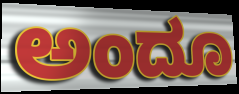
ಅಂದೂ